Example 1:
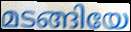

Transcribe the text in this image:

മടങ്ങിയേ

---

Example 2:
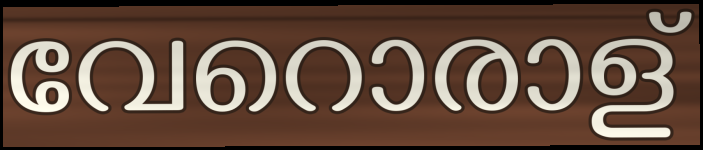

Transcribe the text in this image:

വേറൊരാള്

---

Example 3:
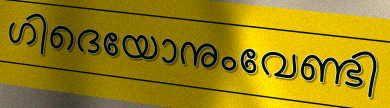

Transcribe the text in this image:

ഗിദെയോനുംവേണ്ടി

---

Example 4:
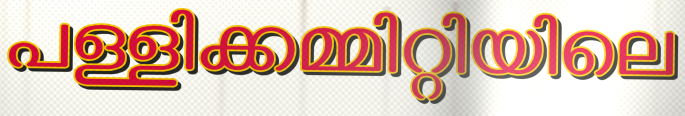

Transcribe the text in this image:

പള്ളിക്കമ്മിറ്റിയിലെ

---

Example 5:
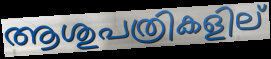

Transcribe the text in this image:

ആശുപത്രികളില്